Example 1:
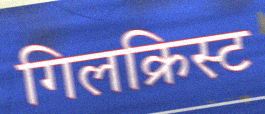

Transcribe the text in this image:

गिलक्रिस्ट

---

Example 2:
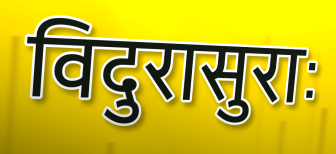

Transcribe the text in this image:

विदुरासुराः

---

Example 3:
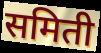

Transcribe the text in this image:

समिती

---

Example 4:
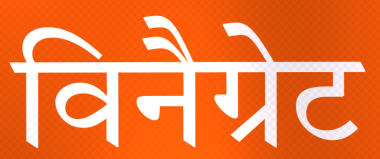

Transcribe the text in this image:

विनैग्रेट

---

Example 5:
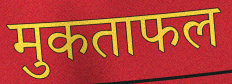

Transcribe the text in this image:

मुकताफल